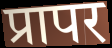
प्रापर